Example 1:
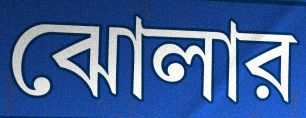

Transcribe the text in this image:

ঝোলার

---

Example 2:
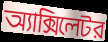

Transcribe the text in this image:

অ্যাক্সিলেটর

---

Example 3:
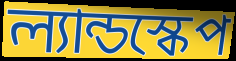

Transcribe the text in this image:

ল্যান্ডস্কেপ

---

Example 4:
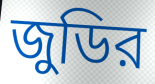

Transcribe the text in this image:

জুডির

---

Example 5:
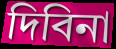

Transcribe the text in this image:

দিবিনা